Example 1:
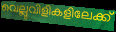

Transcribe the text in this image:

വെല്ലുവിളികളിലേക്ക്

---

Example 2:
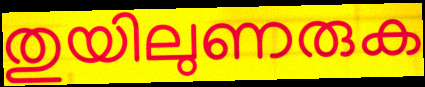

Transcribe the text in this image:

തുയിലുണരുക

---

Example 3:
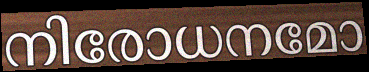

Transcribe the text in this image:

നിരോധനമോ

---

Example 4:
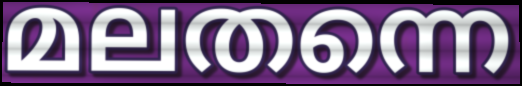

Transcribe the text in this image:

മലതന്നെ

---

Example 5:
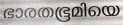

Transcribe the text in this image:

ഭാരതഭൂമിയെ